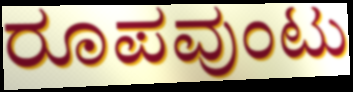
ರೂಪವುಂಟು